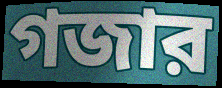
গজার